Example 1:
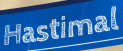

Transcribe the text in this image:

Hastimal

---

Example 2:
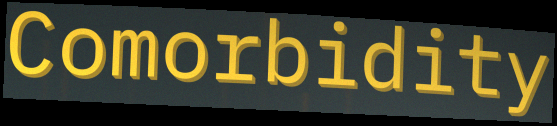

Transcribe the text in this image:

Comorbidity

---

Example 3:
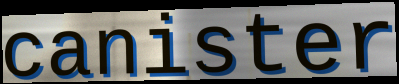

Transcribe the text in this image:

canister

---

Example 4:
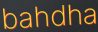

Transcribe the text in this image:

bahdha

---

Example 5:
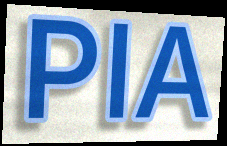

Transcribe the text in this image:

PIA